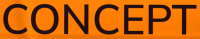
CONCEPT